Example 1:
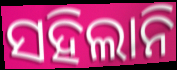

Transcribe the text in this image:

ସହିଲାନି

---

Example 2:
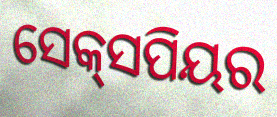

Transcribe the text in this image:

ସେକ୍‌ସପିୟର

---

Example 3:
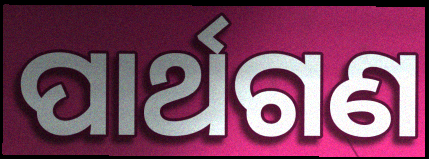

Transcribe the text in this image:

ପାର୍ଥଗଣ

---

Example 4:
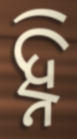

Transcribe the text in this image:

ହ୍ନି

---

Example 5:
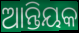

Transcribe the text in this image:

ଆନ୍ତିୟକ